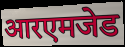
आरएमजेड